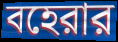
বহেরার